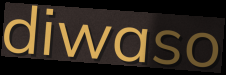
diwaso